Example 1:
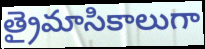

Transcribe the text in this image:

త్రైమాసికాలుగా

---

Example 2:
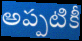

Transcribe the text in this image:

అప్పటికీ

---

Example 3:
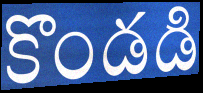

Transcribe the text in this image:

కొండడి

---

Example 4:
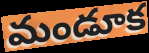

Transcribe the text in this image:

మండూక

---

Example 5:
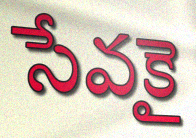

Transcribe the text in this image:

సేవకై